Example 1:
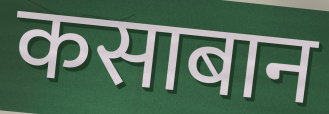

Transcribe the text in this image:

कसाबान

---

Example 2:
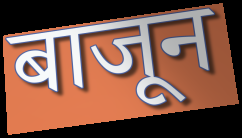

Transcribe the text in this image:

बाजून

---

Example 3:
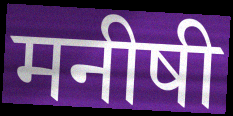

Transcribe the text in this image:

मनीषी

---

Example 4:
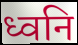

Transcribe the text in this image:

ध्वनि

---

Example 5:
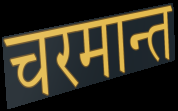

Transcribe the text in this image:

चरमान्त